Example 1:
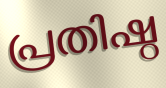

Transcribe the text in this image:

പ്രതിഷ്ഠ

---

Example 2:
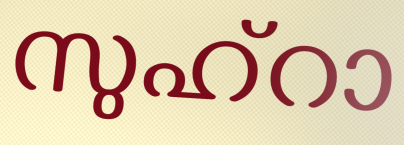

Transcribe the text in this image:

സുഹ്റാ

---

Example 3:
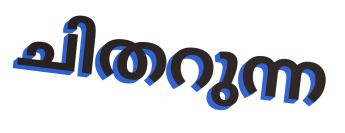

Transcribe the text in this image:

ചിതറുന്ന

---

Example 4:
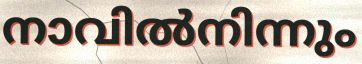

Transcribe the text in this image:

നാവിൽനിന്നും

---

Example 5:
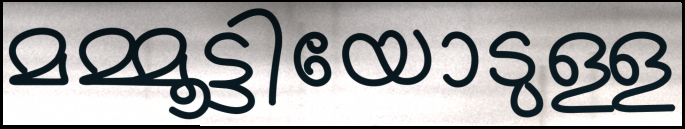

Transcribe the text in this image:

മമ്മൂട്ടിയോടുള്ള